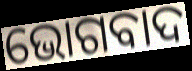
ଭୋଗବାଦ